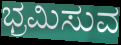
ಭ್ರಮಿಸುವ